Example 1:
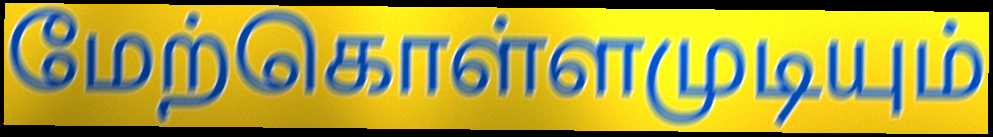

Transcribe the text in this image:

மேற்கொள்ளமுடியும்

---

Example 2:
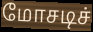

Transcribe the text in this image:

மோசடிச்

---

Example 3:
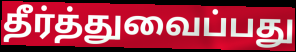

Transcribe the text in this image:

தீர்த்துவைப்பது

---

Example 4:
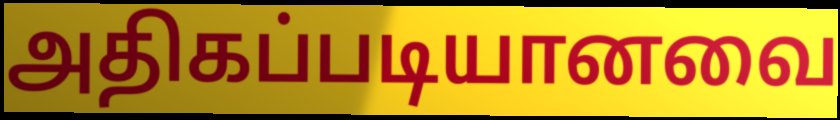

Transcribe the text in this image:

அதிகப்படியானவை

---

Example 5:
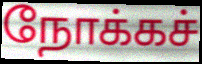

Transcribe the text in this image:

நோக்கச்